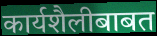
कार्यशैलीबाबत